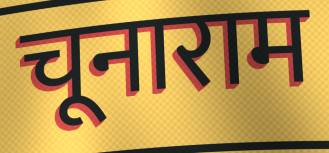
चूनाराम